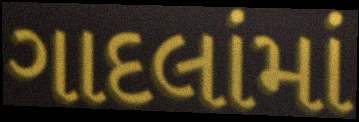
ગાદલાંમાં